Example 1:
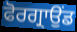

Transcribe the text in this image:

ਫੋਰਗ੍ਰਾਉਂਡ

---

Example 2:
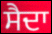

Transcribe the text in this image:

ਸੈਦਾ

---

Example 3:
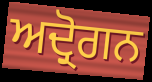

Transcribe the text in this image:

ਅਦ੍ਰੋਗਨ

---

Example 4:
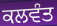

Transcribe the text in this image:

ਕਲਵੰਤ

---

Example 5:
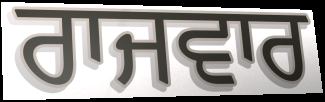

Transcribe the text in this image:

ਰਾਜਵਾਰ